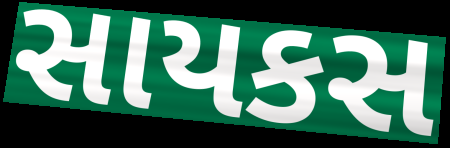
સાયકસ